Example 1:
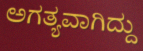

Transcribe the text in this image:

ಅಗತ್ಯವಾಗಿದ್ದು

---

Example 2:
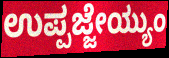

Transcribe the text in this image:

ಉಪ್ಪಜ್ಜೇಯ್ಯುಂ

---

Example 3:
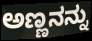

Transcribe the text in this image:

ಅಣ್ಣನನ್ನು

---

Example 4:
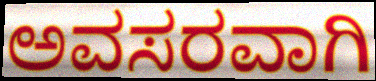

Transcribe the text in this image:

ಅವಸರವಾಗಿ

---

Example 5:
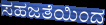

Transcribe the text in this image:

ಸಹಜತೆಯಿಂದ